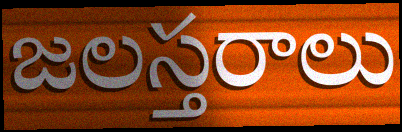
జలస్తరాలు